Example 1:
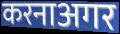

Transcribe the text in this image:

करनाअगर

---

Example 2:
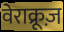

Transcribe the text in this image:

वेराक्रूज़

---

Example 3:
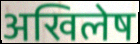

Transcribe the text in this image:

अखिलेष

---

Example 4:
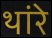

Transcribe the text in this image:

थांरे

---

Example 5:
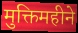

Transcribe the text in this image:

मुक्तिमहीने